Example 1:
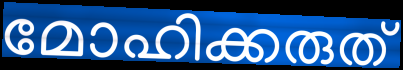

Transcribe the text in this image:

മോഹിക്കരുത്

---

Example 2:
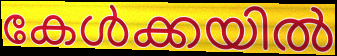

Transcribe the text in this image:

കേൾക്കയിൽ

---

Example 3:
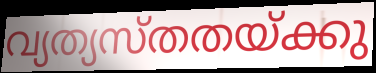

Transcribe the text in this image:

വ്യത്യസ്തതയ്ക്കു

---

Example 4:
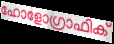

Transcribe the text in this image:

ഹോളോഗ്രാഫിക്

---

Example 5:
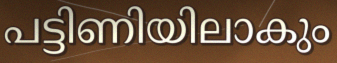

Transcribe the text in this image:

പട്ടിണിയിലാകും